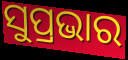
ସୁପ୍ରଭାର